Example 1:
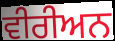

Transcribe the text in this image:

ਵੀਰੀਅਨ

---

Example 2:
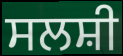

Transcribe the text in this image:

ਸਲਸ਼ੀ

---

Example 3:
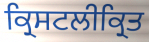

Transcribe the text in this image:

ਕ੍ਰਿਸਟਲੀਕ੍ਰਿਤ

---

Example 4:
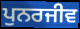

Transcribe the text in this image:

ਪੁਨਰਜੀਵ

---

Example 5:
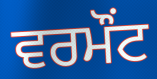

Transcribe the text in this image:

ਵਰਮੌਂਟ